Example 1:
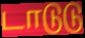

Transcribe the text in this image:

டாடுடு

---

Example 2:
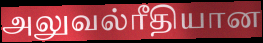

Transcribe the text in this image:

அலுவல்ரீதியான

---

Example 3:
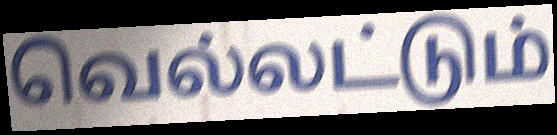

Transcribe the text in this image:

வெல்லட்டும்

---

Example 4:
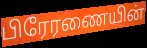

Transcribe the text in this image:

பிரேரணையின்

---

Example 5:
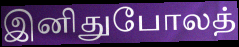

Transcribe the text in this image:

இனிதுபோலத்